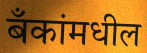
बँकांमधील